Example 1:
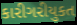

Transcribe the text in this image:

કારીગરીયુકત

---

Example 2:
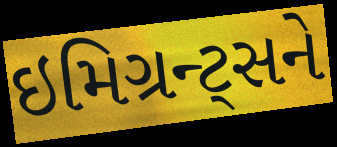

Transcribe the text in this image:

ઇમિગ્રન્ટ્સને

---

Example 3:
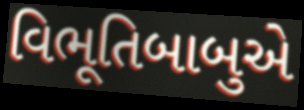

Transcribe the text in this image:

વિભૂતિબાબુએ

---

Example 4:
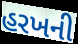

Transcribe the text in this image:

હરખની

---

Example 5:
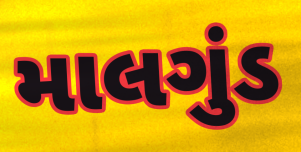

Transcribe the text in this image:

માલગુંડ